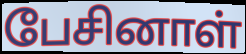
பேசினாள்